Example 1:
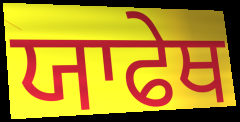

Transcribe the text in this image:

ਯਾਫੇਥ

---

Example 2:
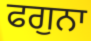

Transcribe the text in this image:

ਫਗੁਨਾ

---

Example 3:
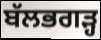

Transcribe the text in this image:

ਬੱਲਭਗੜ੍ਹ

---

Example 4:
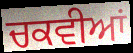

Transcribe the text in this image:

ਚਕਵੀਆਂ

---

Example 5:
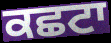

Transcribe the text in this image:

ਕਛਟਾ